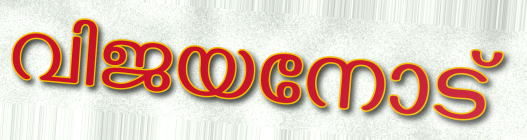
വിജയനോട്